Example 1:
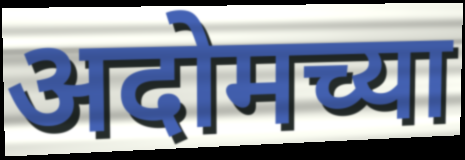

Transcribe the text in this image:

अदोमच्या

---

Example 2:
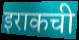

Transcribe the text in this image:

इराकची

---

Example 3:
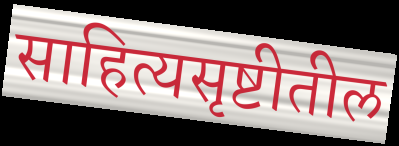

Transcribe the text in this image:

साहित्यसृष्टीतील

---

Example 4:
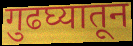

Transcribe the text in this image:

गुढघ्यातून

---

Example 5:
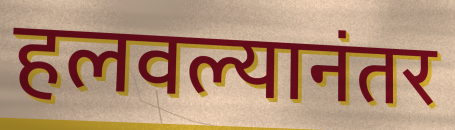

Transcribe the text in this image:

हलवल्यानंतर